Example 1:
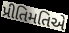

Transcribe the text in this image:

પ્રીતિમતિએ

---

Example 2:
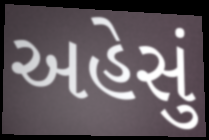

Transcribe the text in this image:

અહેસું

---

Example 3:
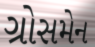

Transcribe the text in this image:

ગ્રોસમેન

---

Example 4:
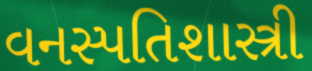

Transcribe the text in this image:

વનસ્પતિશાસ્ત્રી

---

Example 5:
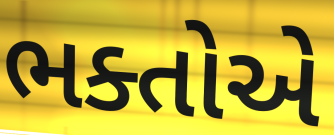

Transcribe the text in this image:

ભક્તોએ